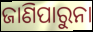
ଜାଣିପାରୁନା